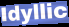
Idyllic